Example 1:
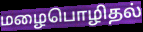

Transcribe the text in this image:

மழைபொழிதல்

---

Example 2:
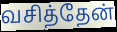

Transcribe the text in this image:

வசித்தேன்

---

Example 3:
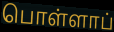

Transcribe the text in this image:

பொள்ளாப்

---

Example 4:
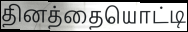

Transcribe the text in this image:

தினத்தையொட்டி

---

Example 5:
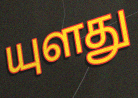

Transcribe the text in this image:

யுளது